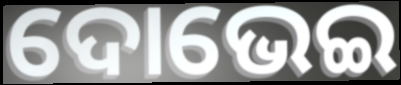
ଦୋଭେଇ